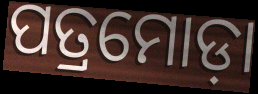
ପତ୍ରମୋଡ଼ା